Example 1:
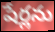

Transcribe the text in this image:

షేర్లను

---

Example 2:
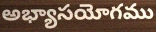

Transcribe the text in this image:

అభ్యాసయోగము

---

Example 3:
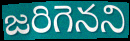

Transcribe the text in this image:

జరిగెనని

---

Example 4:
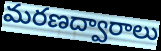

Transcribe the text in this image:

మరణద్వారాలు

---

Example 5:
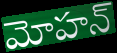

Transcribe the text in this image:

మోహన్